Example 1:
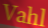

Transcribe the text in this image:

Vahl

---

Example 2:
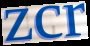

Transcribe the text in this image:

zcr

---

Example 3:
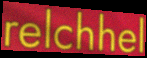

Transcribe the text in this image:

relchhel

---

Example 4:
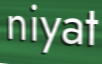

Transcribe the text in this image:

niyat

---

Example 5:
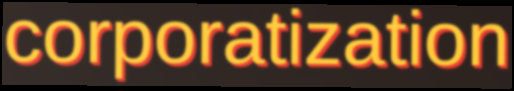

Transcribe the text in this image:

corporatization